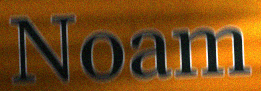
Noam